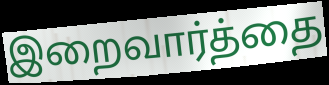
இறைவார்த்தை